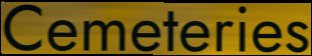
Cemeteries